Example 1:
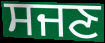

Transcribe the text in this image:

ਸਜਣ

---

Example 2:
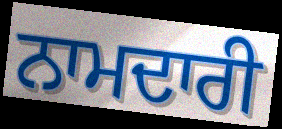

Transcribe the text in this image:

ਨਾਮਦਾਰੀ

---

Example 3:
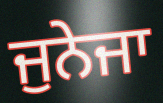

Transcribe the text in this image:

ਜੁਨੇਜਾ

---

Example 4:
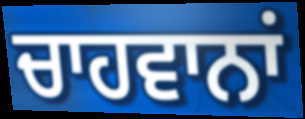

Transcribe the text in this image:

ਚਾਹਵਾਨਾਂ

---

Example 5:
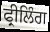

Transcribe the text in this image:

ਫ੍ਰੀਲਿੰਗ